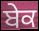
ਬੇਕ